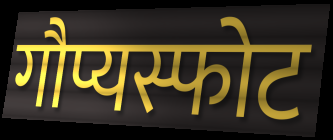
गौप्यस्फोट